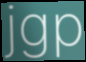
jgp